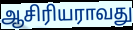
ஆசிரியராவது